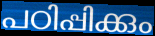
പഠിപ്പിക്കും